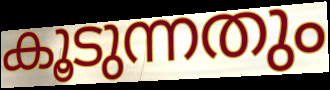
കൂടുന്നതും